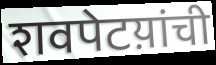
शवपेटय़ांची